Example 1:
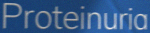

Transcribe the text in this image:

Proteinuria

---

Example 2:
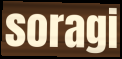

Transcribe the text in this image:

soragi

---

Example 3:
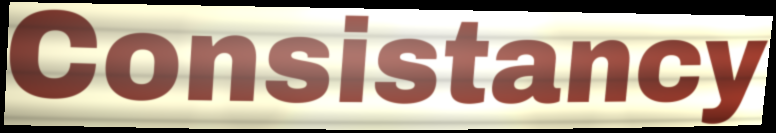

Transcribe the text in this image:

Consistancy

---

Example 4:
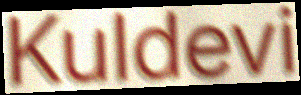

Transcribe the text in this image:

Kuldevi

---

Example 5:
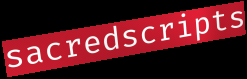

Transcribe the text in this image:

sacredscripts